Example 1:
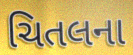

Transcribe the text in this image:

ચિતલના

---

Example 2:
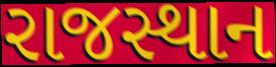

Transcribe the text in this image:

રાજસ્થાન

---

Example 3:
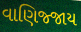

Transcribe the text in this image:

વાણિજ્જાય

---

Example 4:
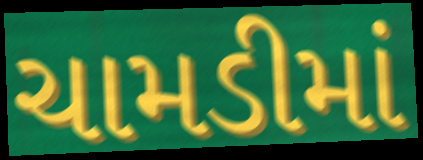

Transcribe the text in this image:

ચામડીમાં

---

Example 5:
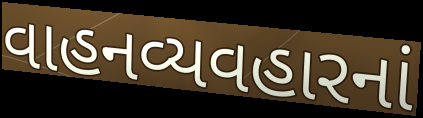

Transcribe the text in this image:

વાહનવ્યવહારનાં